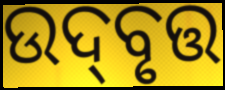
ଉଦ୍‌ବୃତ୍ତ